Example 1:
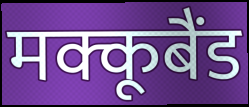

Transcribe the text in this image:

मक्कूबैंड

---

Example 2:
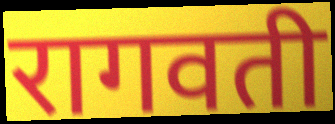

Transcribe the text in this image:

रागवती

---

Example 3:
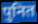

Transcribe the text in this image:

पुनित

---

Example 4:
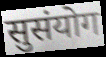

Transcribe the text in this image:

सुसंयोग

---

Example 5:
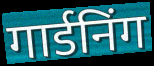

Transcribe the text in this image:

गार्डनिंग